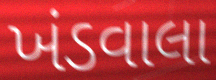
ખંડવાલા